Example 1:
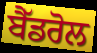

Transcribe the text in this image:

ਬੈੱਡਰੋਲ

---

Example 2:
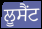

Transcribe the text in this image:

ਲੂਸੈਂਟ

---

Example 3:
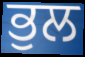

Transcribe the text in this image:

ਭੁਲ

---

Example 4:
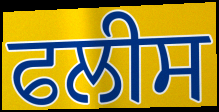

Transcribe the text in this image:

ਫਲੀਸ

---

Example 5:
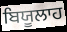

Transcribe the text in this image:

ਬਿਯੂਲਾਹ